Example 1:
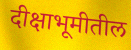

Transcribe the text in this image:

दीक्षाभूमीतील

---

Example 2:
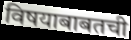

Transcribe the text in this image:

विषयाबाबतची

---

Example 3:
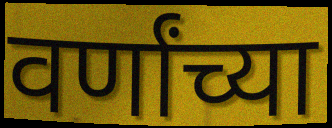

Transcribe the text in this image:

वर्णांच्या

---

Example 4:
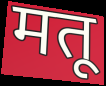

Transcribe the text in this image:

मतू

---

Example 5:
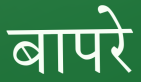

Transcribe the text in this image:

बापरे